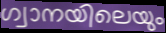
ഗ്വാനയിലെയും